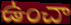
ఉంచా